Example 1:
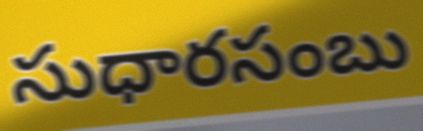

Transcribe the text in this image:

సుధారసంబు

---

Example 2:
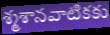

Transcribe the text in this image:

శ్మశానవాటికకు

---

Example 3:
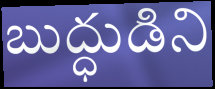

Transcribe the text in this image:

బుద్ధుడిని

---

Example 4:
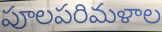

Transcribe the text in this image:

పూలపరిమళాల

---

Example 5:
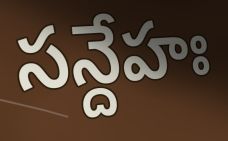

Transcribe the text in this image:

సన్దేహః